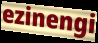
ezinengi